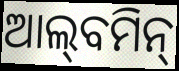
ଆଲ୍‌ବମିନ୍